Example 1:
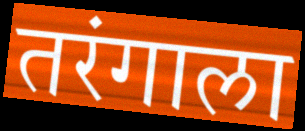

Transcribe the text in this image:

तरंगाला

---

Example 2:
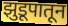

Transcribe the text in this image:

झुडूपातून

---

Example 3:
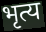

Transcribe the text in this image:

भृत्य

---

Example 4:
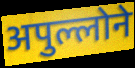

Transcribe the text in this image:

अपुल्लोने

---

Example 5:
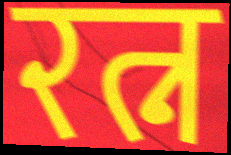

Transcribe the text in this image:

रत्न